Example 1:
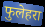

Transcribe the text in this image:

फुलेहरा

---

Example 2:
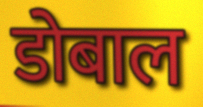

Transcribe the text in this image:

डोबाल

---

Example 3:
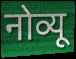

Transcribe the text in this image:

नोव्यू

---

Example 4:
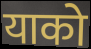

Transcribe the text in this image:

याको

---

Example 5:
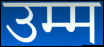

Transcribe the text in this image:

उम्म